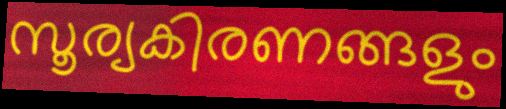
സൂര്യകിരണങ്ങളും